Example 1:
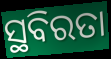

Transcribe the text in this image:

ସ୍ଥବିରତା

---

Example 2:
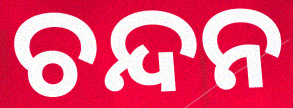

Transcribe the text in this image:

ଚନ୍ଦନ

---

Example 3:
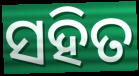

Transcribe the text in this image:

ସହିତ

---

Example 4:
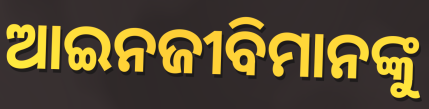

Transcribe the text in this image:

ଆଇନଜୀବିମାନଙ୍କୁ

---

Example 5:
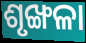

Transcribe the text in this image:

ଶୃଙ୍ଖଳା